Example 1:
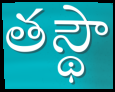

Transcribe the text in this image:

తస్థౌ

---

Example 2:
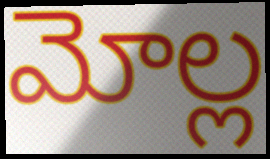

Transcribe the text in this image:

మోల్ల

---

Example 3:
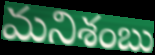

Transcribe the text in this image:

మనిశంబు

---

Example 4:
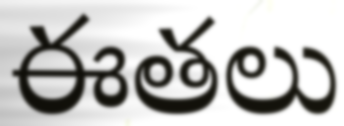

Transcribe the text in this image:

ఈతలు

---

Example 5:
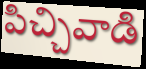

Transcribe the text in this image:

పిచ్చివాడి